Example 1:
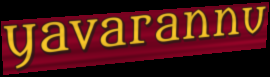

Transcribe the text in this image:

yavarannu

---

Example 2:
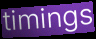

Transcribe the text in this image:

timings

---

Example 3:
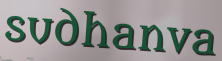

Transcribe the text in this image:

sudhanva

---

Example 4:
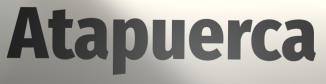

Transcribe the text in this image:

Atapuerca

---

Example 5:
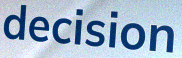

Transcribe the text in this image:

decision